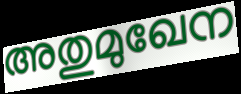
അതുമുഖേന